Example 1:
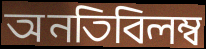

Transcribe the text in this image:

অনতিবিলম্ব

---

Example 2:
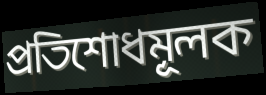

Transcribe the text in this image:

প্রতিশোধমূলক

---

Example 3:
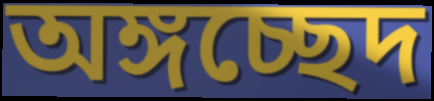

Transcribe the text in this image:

অঙ্গচ্ছেদ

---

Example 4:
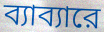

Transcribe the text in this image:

ব্যাব্যারে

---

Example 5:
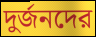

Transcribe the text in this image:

দুর্জনদের